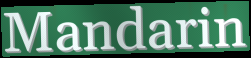
Mandarin